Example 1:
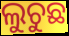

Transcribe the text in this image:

ଲୁଚୁଛ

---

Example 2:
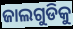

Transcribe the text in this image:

ଜାଲଗୁଡିକୁ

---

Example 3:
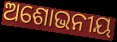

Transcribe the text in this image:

ଅଶୋଭନୀୟ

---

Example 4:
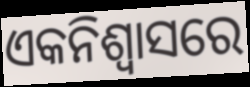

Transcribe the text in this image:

ଏକନିଶ୍ୱାସରେ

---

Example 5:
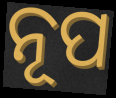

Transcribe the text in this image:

ନୂପ